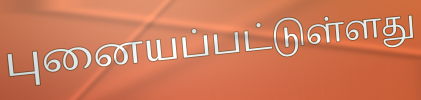
புனையப்பட்டுள்ளது